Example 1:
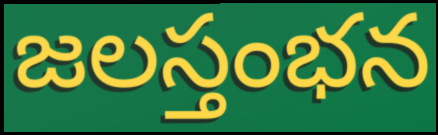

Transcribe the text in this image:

జలస్తంభన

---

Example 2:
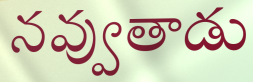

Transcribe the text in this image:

నవ్వుతాడు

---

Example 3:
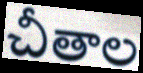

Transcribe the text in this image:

చీతాల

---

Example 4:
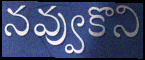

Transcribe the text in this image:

నవ్వుకొని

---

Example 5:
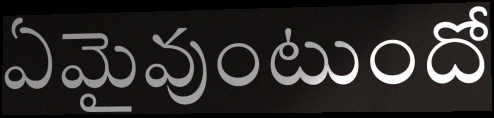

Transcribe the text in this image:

ఏమైవుంటుందో